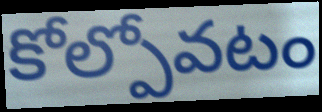
కోల్పోవటం